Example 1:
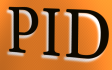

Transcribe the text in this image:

PID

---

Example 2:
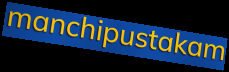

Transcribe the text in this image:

manchipustakam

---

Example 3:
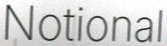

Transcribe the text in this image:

Notional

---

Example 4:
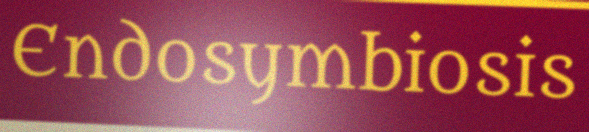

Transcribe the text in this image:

Endosymbiosis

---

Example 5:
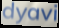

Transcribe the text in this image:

dyavi